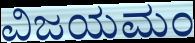
ವಿಜಯಮಂ